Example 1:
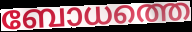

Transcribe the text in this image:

ബോധത്തെ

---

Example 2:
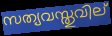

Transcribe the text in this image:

സത്യവസ്തുവില്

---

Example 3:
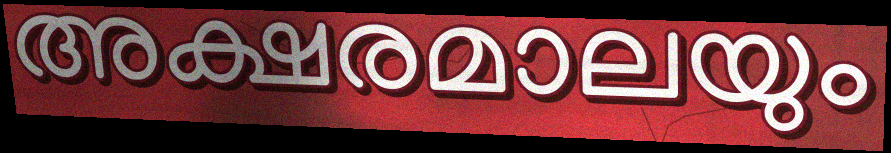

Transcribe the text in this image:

അക്ഷരമാലയും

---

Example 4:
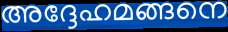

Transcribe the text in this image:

അദ്ദേഹമങ്ങനെ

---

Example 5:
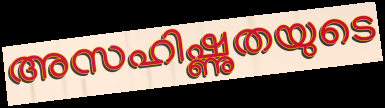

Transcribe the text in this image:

അസഹിഷ്ണുതയുടെ